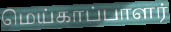
மெய்காப்பாளர்